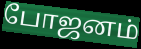
போஜனம்